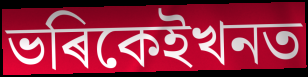
ভৰিকেইখনত